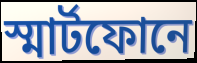
স্মার্টফোনে